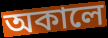
অকালে